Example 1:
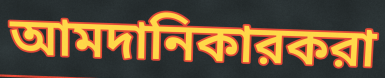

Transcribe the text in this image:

আমদানিকারকরা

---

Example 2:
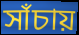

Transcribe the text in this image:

সাঁচায়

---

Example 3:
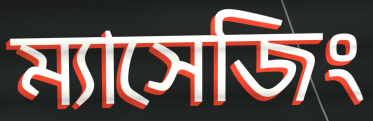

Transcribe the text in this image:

ম্যাসেজিং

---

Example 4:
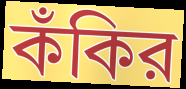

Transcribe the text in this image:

কঁকির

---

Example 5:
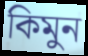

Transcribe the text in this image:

কিমুন